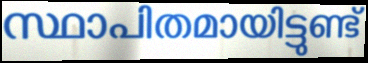
സ്ഥാപിതമായിട്ടുണ്ട്